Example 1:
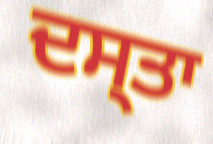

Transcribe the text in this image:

ਦਸ੍ਤਾ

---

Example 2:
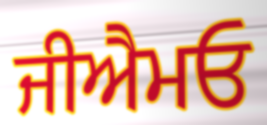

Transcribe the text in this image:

ਜੀਐਮਓ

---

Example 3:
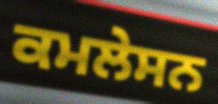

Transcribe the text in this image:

ਕਮਲੇਸਨ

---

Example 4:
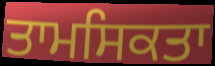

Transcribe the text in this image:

ਤਾਮਸਿਕਤਾ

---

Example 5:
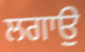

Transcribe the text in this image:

ਲਗਾਉੁ